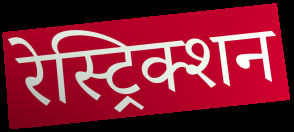
रेस्ट्रिक्शन